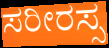
ಸರೀರಸ್ಸ